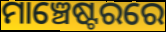
ମାଞ୍ଚେଷ୍ଟରରେ